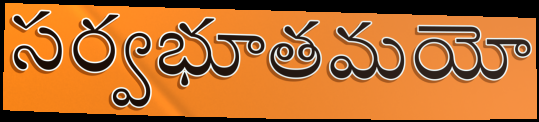
సర్వభూతమయో